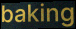
baking